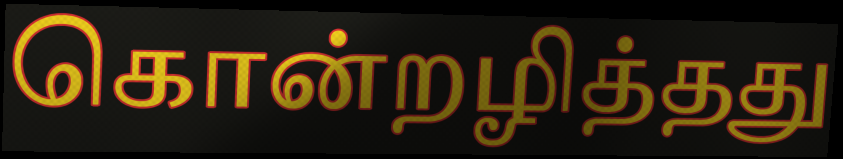
கொன்றழித்தது